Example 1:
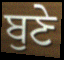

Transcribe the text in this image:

ਬੁਣੇ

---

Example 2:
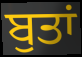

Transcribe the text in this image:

ਬੁਤਾਂ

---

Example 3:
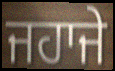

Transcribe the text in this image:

ਜਹਾਜੇ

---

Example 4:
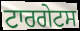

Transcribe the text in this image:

ਟਾਰਗੇਟਸ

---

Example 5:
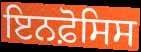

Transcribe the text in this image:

ਇਨਫ਼ੋਸਿਸ